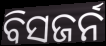
ବିସଜର୍ନ